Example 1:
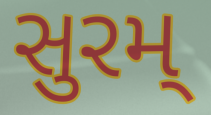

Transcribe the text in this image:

સુરમ્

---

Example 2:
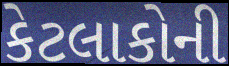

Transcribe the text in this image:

કેટલાકોની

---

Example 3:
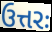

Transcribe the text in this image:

ઉત્તરઃ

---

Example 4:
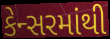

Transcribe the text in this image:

કેન્સરમાંથી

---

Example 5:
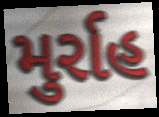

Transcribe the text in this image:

મુર્રાહ